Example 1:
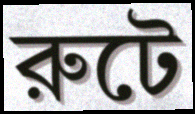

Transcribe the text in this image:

রুটে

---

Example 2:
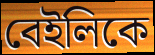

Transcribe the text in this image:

বেইলিকে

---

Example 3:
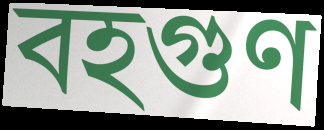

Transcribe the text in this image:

বহগুণ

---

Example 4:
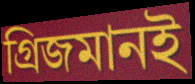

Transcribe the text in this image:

গ্রিজমানই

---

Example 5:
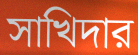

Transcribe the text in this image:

সাখিদার